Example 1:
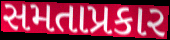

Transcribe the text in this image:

સમતાપ્રકાર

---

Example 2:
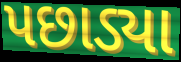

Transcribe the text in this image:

પછાડ્યા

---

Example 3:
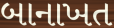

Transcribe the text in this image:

બાનાખત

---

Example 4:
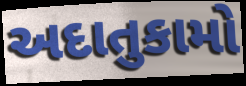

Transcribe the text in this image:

અદાતુકામો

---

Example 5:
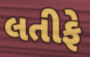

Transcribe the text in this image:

લતીફે